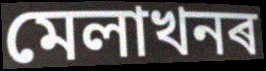
মেলাখনৰ